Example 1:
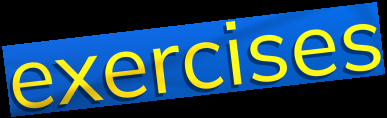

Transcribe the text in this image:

exercises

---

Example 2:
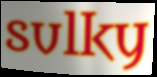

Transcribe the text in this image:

sulky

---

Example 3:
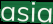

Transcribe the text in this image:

asia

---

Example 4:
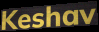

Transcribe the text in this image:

Keshav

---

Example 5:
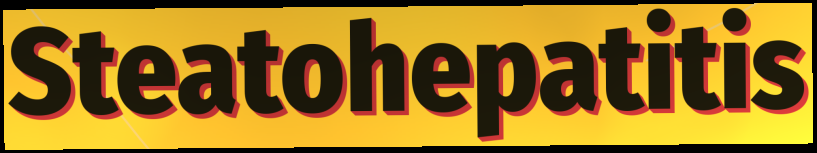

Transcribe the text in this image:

Steatohepatitis